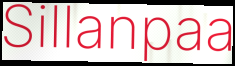
Sillanpaa